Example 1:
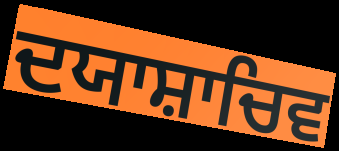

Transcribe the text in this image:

ਦਯਾਸ਼ਾਚਿਵ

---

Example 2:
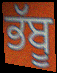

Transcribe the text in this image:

ਭੱਬੂ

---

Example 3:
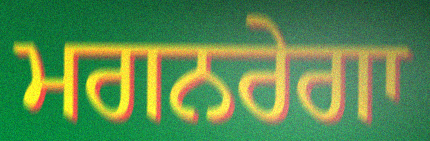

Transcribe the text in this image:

ਮਗਨਰੇਗਾ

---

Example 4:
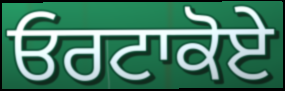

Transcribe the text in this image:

ਓਰਟਾਕੋਏ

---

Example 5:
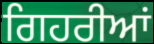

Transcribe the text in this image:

ਗਿਹਰੀਆਂ